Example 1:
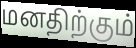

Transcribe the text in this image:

மனதிற்கும்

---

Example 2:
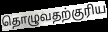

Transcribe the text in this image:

தொழுவதற்குரிய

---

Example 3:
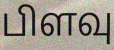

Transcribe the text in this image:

பிளவு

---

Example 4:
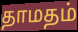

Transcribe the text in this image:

தாமதம்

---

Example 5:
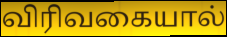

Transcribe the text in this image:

விரிவகையால்